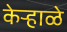
केऱ्हाळे